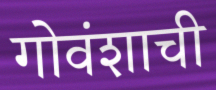
गोवंशाची